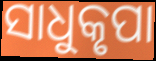
ସାଧୁକୃପା